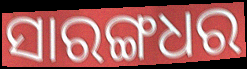
ସାରଙ୍ଗଧର